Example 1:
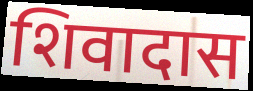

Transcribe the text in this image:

शिवादास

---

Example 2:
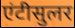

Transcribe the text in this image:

एंटीसुलर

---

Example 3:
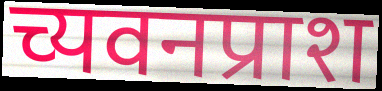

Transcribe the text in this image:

च्‍यवनप्राश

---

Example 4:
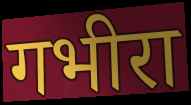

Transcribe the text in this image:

गभीरा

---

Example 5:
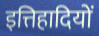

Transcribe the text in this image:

इत्तिहादियों